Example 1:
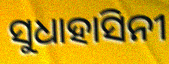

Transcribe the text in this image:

ସୁଧାହାସିନୀ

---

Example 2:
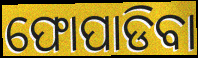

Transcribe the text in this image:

ଫୋପାଡିବା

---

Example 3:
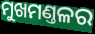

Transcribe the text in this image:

ମୁଖମଣ୍ତଳର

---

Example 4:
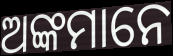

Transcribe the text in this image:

ଅଙ୍କମାନେ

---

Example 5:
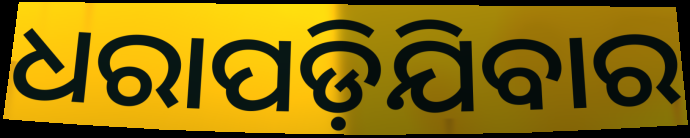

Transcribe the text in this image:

ଧରାପଡ଼ିଯିବାର